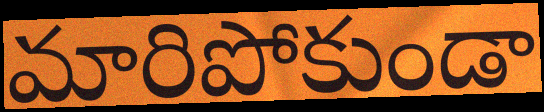
మారిపోకుండా